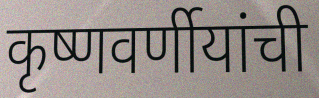
कृष्णवर्णीयांची